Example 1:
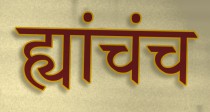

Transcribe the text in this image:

ह्यांचंच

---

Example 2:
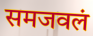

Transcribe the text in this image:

समजवलं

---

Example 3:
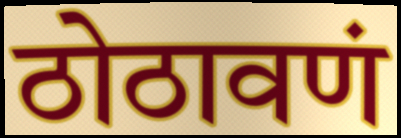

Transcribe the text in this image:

ठोठावणं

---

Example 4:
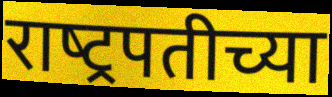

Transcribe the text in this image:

राष्ट्रपतीच्या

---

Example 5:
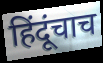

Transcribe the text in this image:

हिंदूंचाच